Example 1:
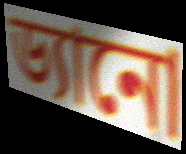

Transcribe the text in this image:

ড্যানো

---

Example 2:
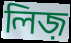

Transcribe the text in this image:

লিজ়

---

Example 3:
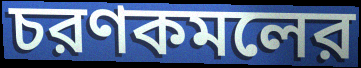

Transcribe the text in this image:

চরণকমলের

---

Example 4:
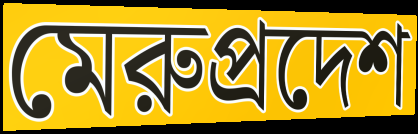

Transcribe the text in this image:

মেরুপ্রদেশ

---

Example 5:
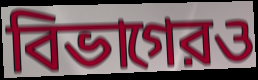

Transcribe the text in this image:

বিভাগেরও